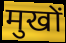
मुखों